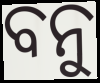
ବନୁ